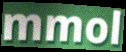
mmol